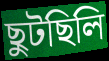
ছুটছিলি